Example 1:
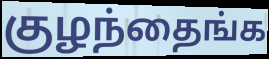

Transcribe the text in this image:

குழந்தைங்க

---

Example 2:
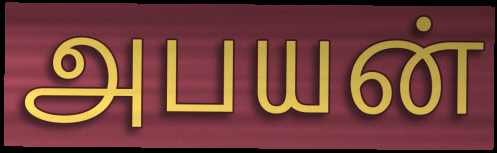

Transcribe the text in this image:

அபயன்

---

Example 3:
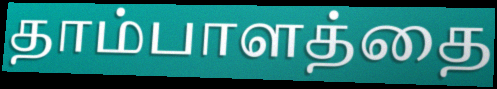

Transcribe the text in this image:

தாம்பாளத்தை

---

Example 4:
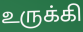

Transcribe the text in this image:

உருக்கி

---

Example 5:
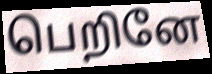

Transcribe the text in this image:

பெறினே